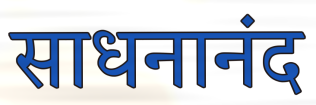
साधनानंद